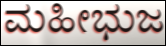
ಮಹೀಭುಜ